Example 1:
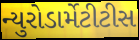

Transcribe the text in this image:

ન્યુરોડાર્મેટીટીસ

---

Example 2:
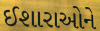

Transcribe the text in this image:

ઈશારાઓને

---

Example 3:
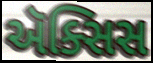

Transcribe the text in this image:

ઍક્સિસ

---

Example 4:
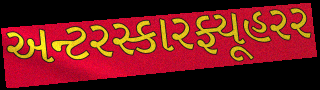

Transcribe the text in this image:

અન્ટરસ્કારફ્યૂહરર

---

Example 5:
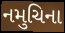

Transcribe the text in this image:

નમુચિના